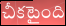
చీకటైంది